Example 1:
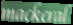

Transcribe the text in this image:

mackeral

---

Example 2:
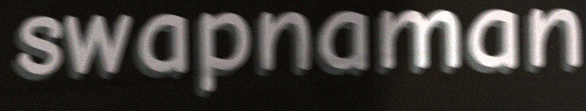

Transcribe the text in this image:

swapnaman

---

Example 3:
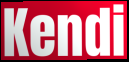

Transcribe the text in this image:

Kendi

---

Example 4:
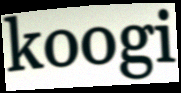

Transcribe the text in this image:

koogi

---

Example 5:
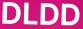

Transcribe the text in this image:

DLDD